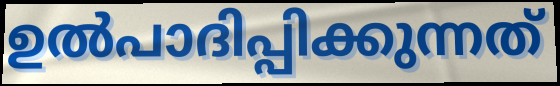
ഉൽപാദിപ്പിക്കുന്നത്